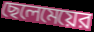
ছেলেমেয়ের